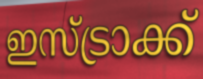
ഇസ്ട്രാക്ക്